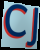
CJ